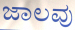
ಜಾಲವು